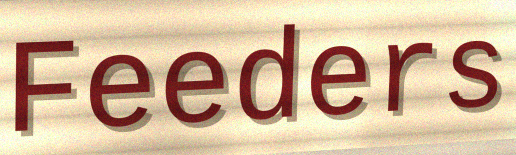
Feeders